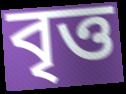
বৃত্ত